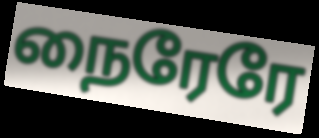
நைரேரே